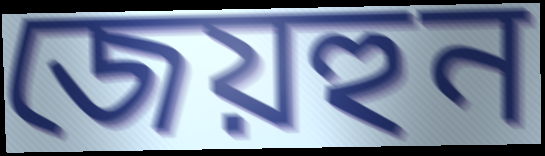
জেয়হুন